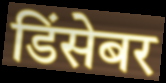
डिंसेबर